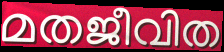
മതജീവിത